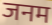
जनम